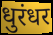
धुरंधर